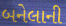
બનેલાની